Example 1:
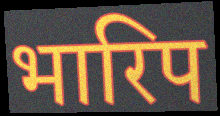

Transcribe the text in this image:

भारिप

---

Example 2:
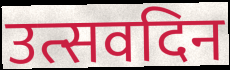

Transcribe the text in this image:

उत्सवदिन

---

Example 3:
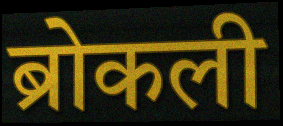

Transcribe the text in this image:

ब्रोकली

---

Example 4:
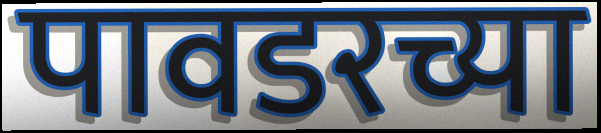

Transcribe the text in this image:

पावडरच्या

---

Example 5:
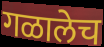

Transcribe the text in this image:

गळालेच